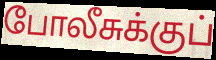
போலீசுக்குப்